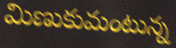
మిణుకుమంటున్న